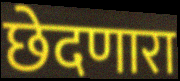
छेदणारा